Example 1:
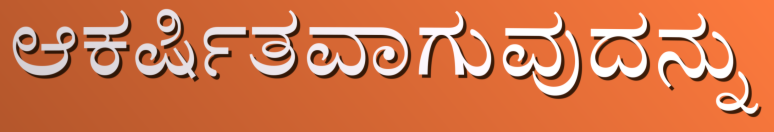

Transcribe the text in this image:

ಆಕರ್ಷಿತವಾಗುವುದನ್ನು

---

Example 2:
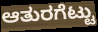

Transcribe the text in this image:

ಆತುರಗೆಟ್ಟು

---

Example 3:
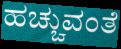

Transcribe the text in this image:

ಹಚ್ಚುವಂತೆ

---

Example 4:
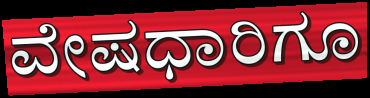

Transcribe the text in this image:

ವೇಷಧಾರಿಗೂ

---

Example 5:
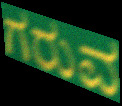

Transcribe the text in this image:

ಗರುವ